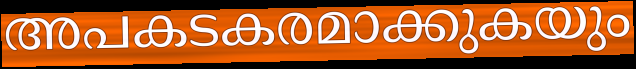
അപകടകരമാക്കുകയും